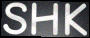
SHK